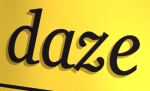
daze